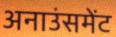
अनाउंसमेंट